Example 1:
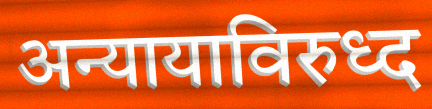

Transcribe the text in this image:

अन्यायाविरुध्द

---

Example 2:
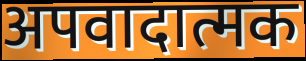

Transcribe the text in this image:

अपवादात्मक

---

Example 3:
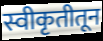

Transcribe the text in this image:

स्वीकृतीतून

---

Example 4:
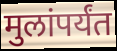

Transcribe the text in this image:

मुलांपर्यंत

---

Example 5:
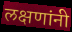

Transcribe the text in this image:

लक्षणांनी